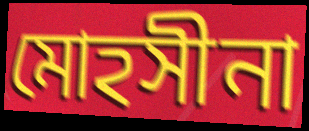
মোহসীনা